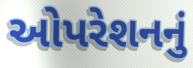
ઓપરેશનનું